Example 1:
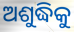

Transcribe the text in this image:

ଅଶୁଦ୍ଧିକୁ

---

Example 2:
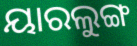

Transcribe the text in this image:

ୟାରଲୁଙ୍ଗ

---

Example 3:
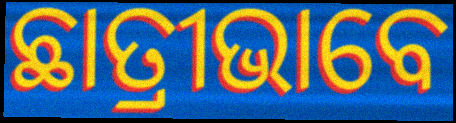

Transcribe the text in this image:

ଛାତ୍ରୀଭାବେ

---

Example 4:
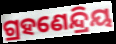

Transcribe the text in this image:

ଗ୍ରହଣେନ୍ଦ୍ରିୟ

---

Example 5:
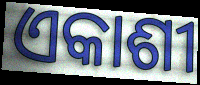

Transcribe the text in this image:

ଏକାଶୀ